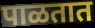
पाळतात